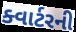
ક્વાર્ટરની